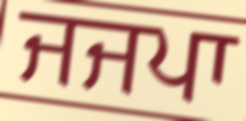
ਜਜਪਾ